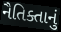
નૈતિક્તાનું